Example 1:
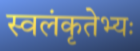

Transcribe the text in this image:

स्वलंकृतेभ्यः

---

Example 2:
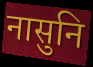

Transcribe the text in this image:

नासुनि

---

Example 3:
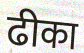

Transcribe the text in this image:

ढीका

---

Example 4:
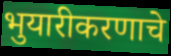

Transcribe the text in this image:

भुयारीकरणाचे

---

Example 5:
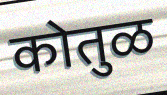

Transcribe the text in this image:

कोतुळ